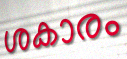
ശകാരം